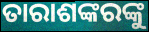
ତାରାଶଙ୍କରଙ୍କୁ